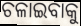
ଚଳାଇବାକୁ